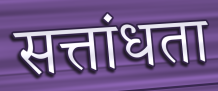
सत्तांधता